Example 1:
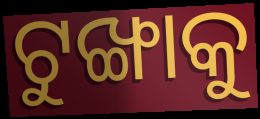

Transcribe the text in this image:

ଟୁଙ୍ଖାକୁ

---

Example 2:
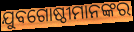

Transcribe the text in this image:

ଯୁବଗୋଷ୍ଠୀମାନଙ୍କର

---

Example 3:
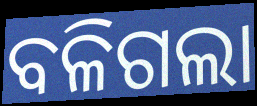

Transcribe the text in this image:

ବଳିଗଲା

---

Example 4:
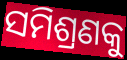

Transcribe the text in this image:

ସମିଶ୍ରଣକୁ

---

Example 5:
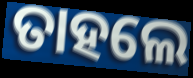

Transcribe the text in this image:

ତାହଲେ